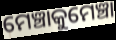
ମେଞ୍ଚାକୁମେଞ୍ଚା